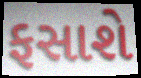
ફસાશે